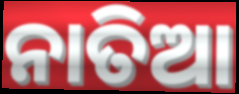
ନାତିଆ